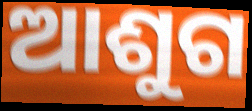
ଆଶୁଗ